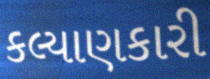
કલ્યાણકારી